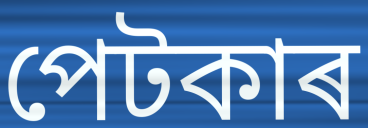
পেটকাৰ